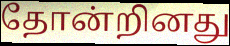
தோன்றினது